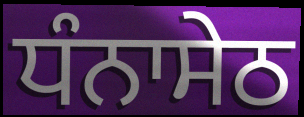
ਧੰਨਾਸੇਠ